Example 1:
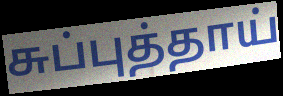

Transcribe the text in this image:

சுப்புத்தாய்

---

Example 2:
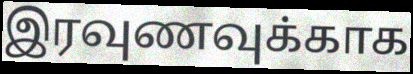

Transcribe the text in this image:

இரவுணவுக்காக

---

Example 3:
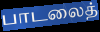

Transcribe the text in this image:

பாடலைத்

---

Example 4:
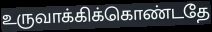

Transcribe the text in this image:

உருவாக்கிக்கொண்டதே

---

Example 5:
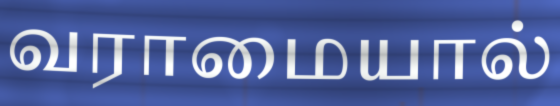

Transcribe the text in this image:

வராமையால்